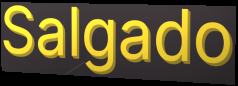
Salgado